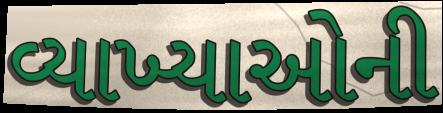
વ્યાખ્યાઓની